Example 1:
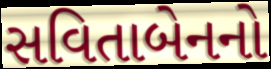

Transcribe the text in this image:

સવિતાબેનનો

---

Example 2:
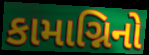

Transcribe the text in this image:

કામાગ્નિનો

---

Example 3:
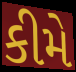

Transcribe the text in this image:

કીમે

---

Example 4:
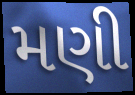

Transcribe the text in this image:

મણી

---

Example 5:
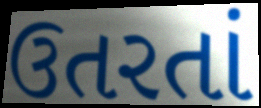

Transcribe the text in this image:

ઉતરતાં